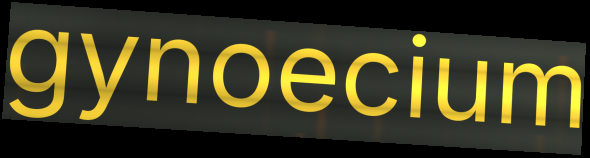
gynoecium